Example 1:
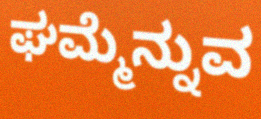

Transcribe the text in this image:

ಘಮ್ಮೆನ್ನುವ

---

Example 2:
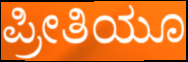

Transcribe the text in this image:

ಪ್ರೀತಿಯೂ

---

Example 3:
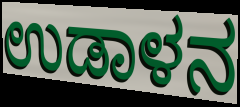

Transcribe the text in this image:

ಉಡಾಳನ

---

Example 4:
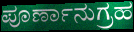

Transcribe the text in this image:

ಪೂರ್ಣಾನುಗ್ರಹ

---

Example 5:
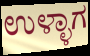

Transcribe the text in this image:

ಉಳ್ಳಾಗ